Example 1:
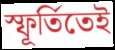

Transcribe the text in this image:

স্ফূর্তিতেই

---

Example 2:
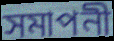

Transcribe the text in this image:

সমাপনী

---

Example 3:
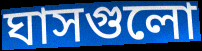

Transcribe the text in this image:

ঘাসগুলো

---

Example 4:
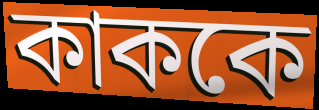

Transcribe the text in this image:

কাককে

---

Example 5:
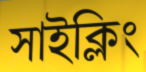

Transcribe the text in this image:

সাইক্লিং